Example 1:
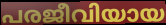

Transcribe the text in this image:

പരജീവിയായ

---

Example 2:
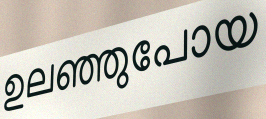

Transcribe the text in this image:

ഉലഞ്ഞുപോയ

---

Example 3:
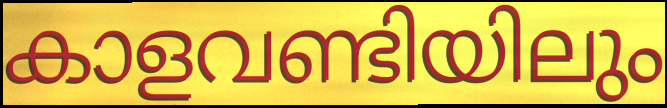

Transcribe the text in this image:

കാളവണ്ടിയിലും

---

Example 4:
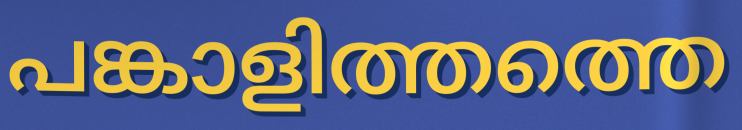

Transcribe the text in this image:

പങ്കാളിത്തത്തെ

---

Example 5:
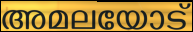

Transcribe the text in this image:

അമലയോട്